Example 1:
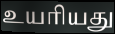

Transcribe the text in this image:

உயரியது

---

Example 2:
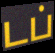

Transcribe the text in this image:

டப்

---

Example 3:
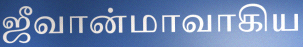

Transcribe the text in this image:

ஜீவான்மாவாகிய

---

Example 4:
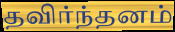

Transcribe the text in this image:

தவிர்ந்தனம்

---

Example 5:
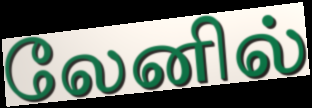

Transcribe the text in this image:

லேனில்